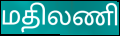
மதிலணி